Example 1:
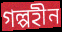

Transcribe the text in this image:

গল্পহীন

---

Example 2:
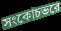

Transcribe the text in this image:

সংকোচভরে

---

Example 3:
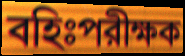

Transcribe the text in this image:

বহিঃপরীক্ষক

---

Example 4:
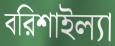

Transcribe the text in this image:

বরিশাইল্যা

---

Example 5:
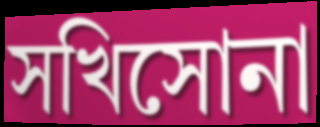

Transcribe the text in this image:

সখিসোনা